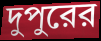
দুপুরের